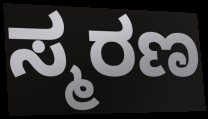
ಸ್ಮರಣ